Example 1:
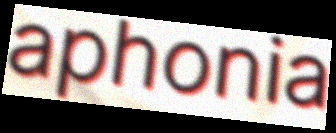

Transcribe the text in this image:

aphonia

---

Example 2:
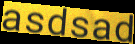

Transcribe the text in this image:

asdsad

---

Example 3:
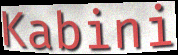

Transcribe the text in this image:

Kabini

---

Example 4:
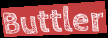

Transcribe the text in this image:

Buttler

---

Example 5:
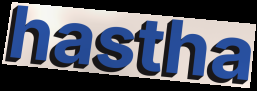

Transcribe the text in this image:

hastha